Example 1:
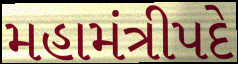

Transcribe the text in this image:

મહામંત્રીપદે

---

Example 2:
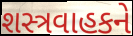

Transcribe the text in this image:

શસ્ત્રવાહકને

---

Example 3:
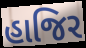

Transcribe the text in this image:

હાજિર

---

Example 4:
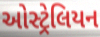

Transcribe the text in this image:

ઓસ્ટ્રેલિયન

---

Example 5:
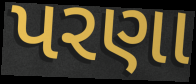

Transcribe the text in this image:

પરણા